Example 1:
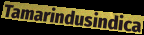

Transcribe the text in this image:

Tamarindusindica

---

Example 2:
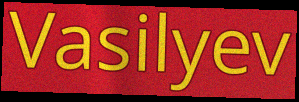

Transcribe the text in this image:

Vasilyev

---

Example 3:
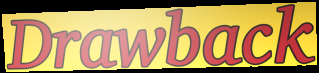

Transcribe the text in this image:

Drawback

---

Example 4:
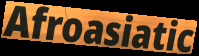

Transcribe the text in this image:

Afroasiatic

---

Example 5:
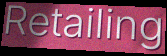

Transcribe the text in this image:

Retailing